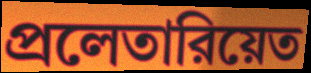
প্রলেতারিয়েত